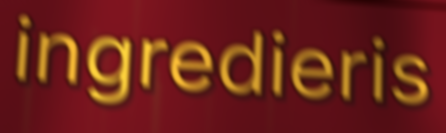
ingredieris